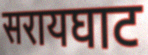
सरायघाट